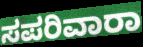
ಸಪರಿವಾರಾ